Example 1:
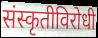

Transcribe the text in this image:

संस्कृतीविरोधी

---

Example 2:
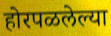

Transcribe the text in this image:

होरपळलेल्या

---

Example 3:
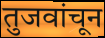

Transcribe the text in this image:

तुजवांचून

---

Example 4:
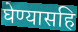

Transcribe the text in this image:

घेण्यासहि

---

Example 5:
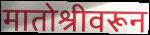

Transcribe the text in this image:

मातोश्रीवरून